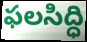
ఫలసిద్ధి